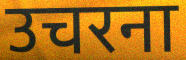
उचरना